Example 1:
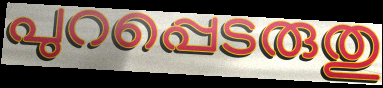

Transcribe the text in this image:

പുറപ്പെടരുതു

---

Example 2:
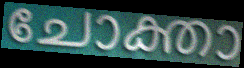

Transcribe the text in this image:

ചോക്താ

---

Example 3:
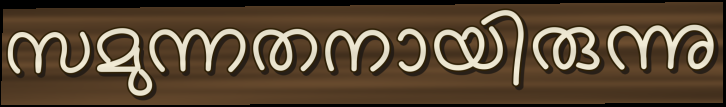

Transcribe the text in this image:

സമുന്നതനായിരുന്നു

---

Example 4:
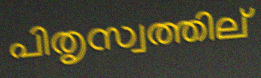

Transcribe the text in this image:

പിതൃസ്വത്തില്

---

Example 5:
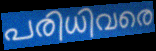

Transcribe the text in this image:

പരിധിവരെ